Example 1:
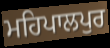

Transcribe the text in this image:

ਮਹਿਪਾਲਪੁਰ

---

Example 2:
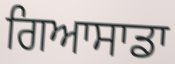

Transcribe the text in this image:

ਗਿਆਸਾਡਾ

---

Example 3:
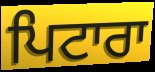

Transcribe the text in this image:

ਪਿਟਾਰਾ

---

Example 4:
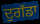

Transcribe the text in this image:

ਦੁਗੱਡਾ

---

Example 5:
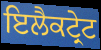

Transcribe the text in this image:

ਇਲੈਕਟ੍ਰੇਟ